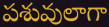
పశువులాగా